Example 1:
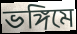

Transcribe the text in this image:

ভঙ্গিমে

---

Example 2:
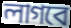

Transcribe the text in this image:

লাগবে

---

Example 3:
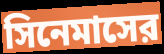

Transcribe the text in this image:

সিনেমাসের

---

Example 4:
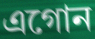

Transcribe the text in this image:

এগোন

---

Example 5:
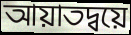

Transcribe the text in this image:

আয়াতদ্বয়ে